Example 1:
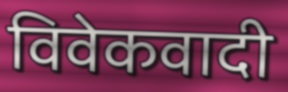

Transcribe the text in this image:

विवेकवादी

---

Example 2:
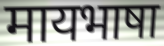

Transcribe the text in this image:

मायभाषा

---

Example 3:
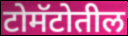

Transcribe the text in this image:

टोमॅटोतील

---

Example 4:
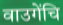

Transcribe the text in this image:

वाउगेंचि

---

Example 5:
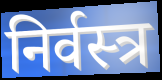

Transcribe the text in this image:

निर्वस्त्र